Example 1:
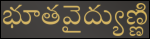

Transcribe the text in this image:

భూతవైద్యుణ్ణి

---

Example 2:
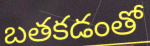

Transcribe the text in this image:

బతకడంతో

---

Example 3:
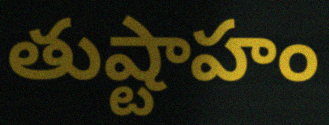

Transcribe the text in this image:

తుష్టాహం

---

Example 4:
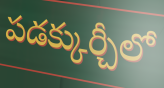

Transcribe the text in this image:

పడక్కుర్చీలో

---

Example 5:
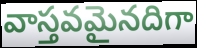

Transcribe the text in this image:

వాస్తవమైనదిగా